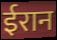
ईरान